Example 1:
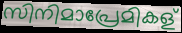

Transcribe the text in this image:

സിനിമാപ്രേമികള്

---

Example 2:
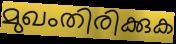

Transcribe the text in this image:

മുഖംതിരിക്കുക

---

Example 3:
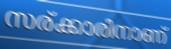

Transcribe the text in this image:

സര്ക്കാരിനാണ്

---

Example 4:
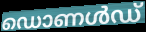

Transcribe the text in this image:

ഡൊണൾഡ്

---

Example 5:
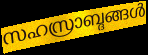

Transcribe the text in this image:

സഹസ്രാബ്ദങ്ങൾ